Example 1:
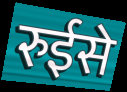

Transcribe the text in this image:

रुईसे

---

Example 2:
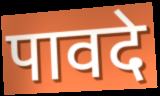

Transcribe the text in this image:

पावदे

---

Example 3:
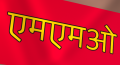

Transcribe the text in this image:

एमएमओ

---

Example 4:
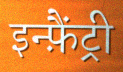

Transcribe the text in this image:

इन्फ़ैंट्री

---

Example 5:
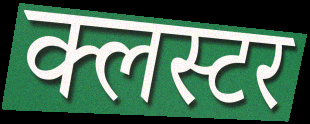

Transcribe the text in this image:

क्लस्टर